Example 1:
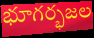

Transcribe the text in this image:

భూగర్భజల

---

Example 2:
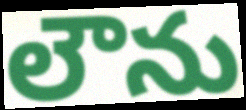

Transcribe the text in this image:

లౌను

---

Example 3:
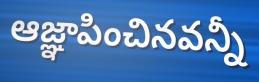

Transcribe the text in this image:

ఆజ్ఞాపించినవన్నీ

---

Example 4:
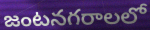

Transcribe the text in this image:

జంటనగరాలలో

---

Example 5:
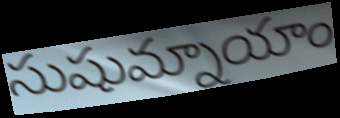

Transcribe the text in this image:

సుషుమ్నాయాం